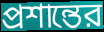
প্রশান্তের